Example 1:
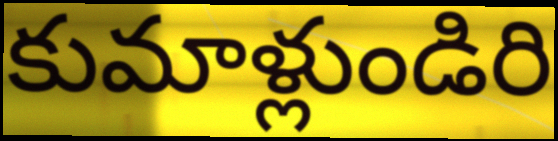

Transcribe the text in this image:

కుమాళ్లుండిరి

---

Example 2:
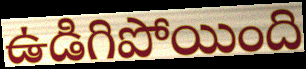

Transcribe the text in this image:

ఉడిగిపోయింది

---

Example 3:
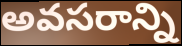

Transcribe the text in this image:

అవసరాన్ని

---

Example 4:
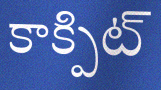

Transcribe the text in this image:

కాక్పిట్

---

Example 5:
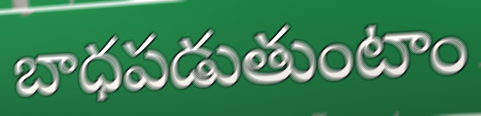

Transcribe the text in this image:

బాధపడుతుంటాం